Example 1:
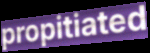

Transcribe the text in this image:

propitiated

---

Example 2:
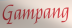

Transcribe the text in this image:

Gampang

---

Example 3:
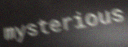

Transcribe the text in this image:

mysterious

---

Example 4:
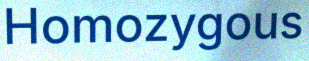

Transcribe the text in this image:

Homozygous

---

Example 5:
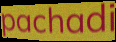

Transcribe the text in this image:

pachadi